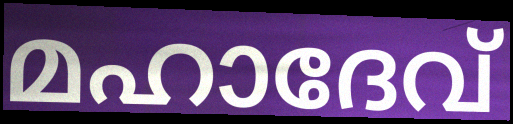
മഹാദേവ്